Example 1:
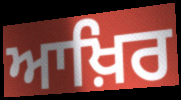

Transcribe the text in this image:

ਆਖ਼ਿਰ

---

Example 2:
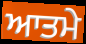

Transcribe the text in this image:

ਆਤਮੇ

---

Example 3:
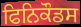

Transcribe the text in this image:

ਫਿਨਿਕੌਡਸ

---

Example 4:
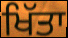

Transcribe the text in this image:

ਖਿੱਤਾ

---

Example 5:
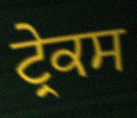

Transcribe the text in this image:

ਟ੍ਰੇਕਸ